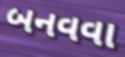
બનવવા